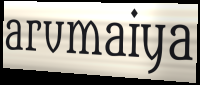
arumaiya